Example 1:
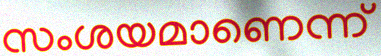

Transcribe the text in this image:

സംശയമാണെന്ന്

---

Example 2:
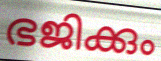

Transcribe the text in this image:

ഭജിക്കും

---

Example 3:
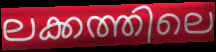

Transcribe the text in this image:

ലക്കത്തിലെ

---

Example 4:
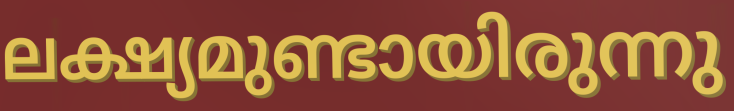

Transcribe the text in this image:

ലക്ഷ്യമുണ്ടായിരുന്നു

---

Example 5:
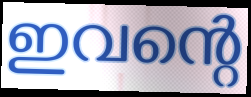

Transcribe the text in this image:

ഇവന്റെ